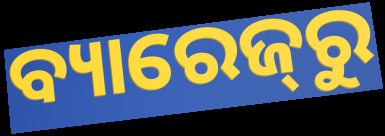
ବ୍ୟାରେଜ୍‌ରୁ